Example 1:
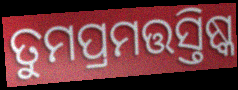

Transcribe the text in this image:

ତୁମପ୍ରମତ୍ତସ୍ତିଷ୍କ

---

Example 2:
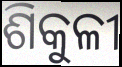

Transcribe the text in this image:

ଶିକୁଳୀ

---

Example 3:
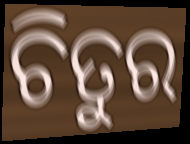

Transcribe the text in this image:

ଚିତୁର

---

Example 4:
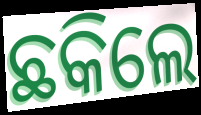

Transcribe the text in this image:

ଛକିଲେ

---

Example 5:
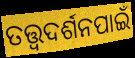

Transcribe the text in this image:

ତତ୍ତ୍ଵଦର୍ଶନପାଇଁ